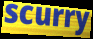
scurry